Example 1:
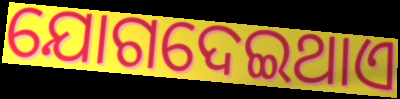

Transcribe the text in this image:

ଯୋଗଦେଇଥାଏ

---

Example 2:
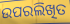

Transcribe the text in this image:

ଉପରଲିଖିତ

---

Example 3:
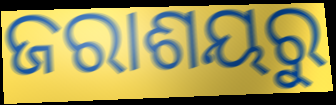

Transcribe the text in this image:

ଜରାଶୟରୁ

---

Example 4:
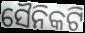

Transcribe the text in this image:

ସୈନିକଟି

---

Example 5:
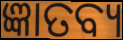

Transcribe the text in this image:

ଜ୍ଞାତବ୍ୟ